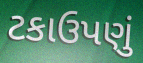
ટકાઉપણું